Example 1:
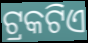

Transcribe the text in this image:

ଟ୍ରକଟିଏ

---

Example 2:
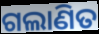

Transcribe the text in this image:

ଗଲାଣିତ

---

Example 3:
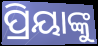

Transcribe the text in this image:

ପ୍ରିୟାଙ୍କୁ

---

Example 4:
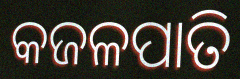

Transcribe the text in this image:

କଜଳପାତି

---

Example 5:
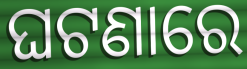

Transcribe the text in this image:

ଘଟଣାରେ